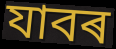
যাবৰ